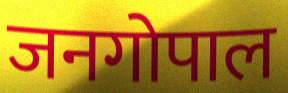
जनगोपाल